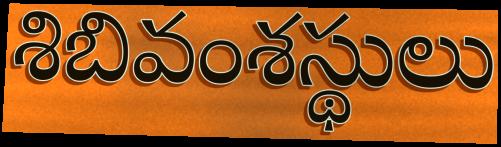
శిబివంశస్థులు